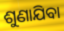
ଶୁଣାଯିବା